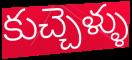
కుచ్చెళ్ళు